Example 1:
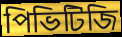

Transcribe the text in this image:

পিভিটিজি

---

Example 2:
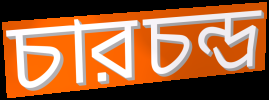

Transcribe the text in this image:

চারচন্দ্র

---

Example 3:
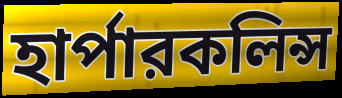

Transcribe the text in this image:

হার্পারকলিন্স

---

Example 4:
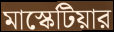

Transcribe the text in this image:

মাস্কেটিয়ার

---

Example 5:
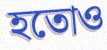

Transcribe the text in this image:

হতোও